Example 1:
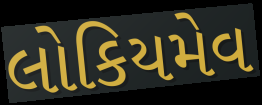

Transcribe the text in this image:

લોકિયમેવ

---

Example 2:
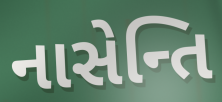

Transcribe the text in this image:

નાસેન્તિ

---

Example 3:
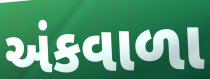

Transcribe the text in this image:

અંકવાળા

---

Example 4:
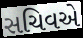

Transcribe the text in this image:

સચિવએ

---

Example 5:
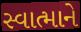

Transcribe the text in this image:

સ્વાત્માને